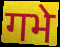
गभे